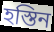
হস্তিন